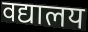
वद्यालय